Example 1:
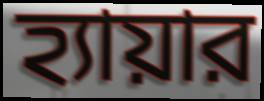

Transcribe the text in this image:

হ্যায়ার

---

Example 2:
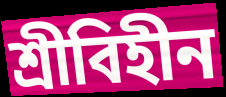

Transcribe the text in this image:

শ্রীবিহীন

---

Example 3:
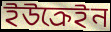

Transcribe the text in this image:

ইউক্রেইন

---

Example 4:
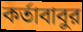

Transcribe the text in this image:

কর্তাবাবুর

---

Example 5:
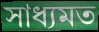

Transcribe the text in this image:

সাধ্যমত